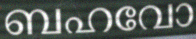
ബഹവോ